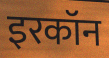
इरकॉन